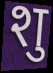
शु